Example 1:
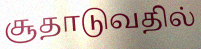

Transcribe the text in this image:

சூதாடுவதில்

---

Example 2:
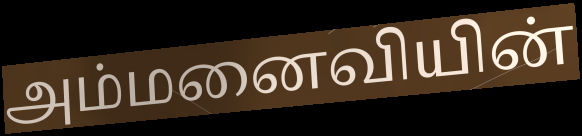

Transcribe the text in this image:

அம்மனைவியின்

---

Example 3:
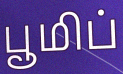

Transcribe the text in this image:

பூமிப்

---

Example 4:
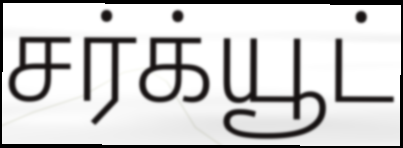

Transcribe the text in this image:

சர்க்யூட்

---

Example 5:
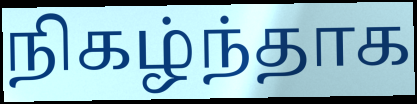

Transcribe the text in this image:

நிகழ்ந்தாக